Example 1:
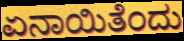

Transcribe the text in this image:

ಏನಾಯಿತೆಂದು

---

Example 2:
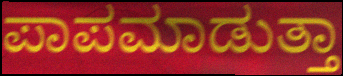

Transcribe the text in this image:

ಪಾಪಮಾಡುತ್ತಾ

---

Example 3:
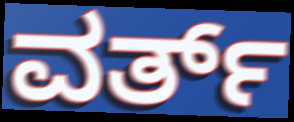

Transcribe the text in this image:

ವರ್ತ್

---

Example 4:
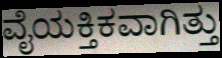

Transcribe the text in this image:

ವೈಯಕ್ತಿಕವಾಗಿತ್ತು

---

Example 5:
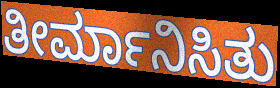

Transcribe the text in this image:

ತೀರ್ಮಾನಿಸಿತು